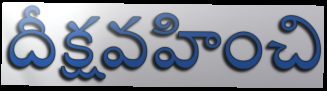
దీక్షవహించి